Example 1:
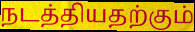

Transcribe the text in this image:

நடத்தியதற்கும்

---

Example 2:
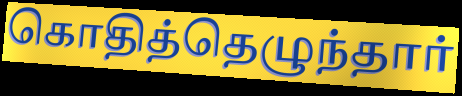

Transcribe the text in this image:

கொதித்தெழுந்தார்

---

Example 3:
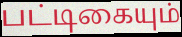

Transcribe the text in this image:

பட்டிகையும்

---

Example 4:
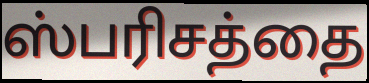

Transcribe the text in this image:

ஸ்பரிசத்தை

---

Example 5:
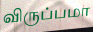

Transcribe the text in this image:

விருப்பமா